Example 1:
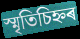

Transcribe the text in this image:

স্মৃতিচিহ্নৰ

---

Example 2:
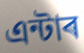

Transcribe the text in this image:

এন্টাৰ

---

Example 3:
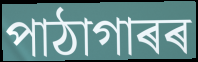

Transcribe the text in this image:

পাঠাগাৰৰ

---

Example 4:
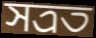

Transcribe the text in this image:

সত্ৰত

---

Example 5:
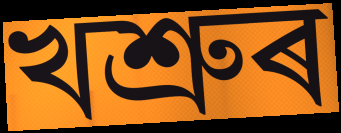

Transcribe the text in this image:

খশ্ৰুৰ